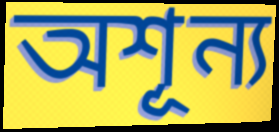
অশূন্য